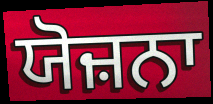
ਯੋਜ਼ਨਾ